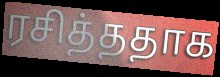
ரசித்ததாக